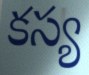
కస్య